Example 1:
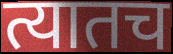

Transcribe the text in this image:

त्यातच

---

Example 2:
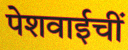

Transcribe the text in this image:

पेशवाईचीं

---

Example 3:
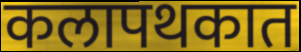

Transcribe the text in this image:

कलापथकात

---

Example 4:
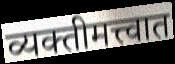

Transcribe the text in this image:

व्यक्तीमत्त्वात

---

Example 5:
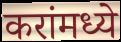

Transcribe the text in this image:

करांमध्ये